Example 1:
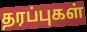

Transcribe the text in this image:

தரப்புகள்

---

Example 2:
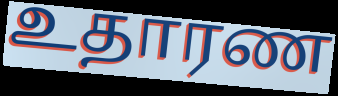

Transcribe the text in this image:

உதாரண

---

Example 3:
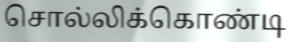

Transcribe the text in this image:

சொல்லிக்கொண்டி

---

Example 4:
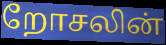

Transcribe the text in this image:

றோசலின்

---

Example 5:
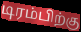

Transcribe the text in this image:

டிரம்பிற்கு